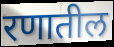
रणातील